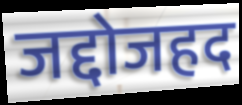
जद्दोजहद